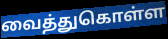
வைத்துகொள்ள